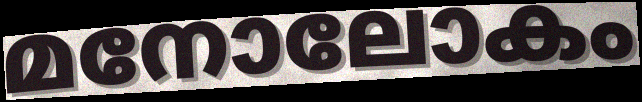
മനോലോകം